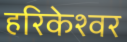
हरिकेश्वर